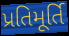
પ્રતિમૂર્તિ